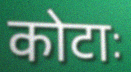
कोटाः